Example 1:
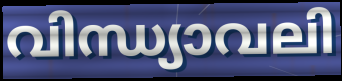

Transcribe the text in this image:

വിന്ധ്യാവലി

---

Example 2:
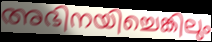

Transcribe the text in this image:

അഭിനയിച്ചെങ്കിലും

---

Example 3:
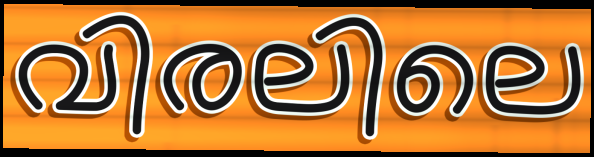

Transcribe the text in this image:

വിരലിലെ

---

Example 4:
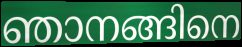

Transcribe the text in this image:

ഞാനങ്ങിനെ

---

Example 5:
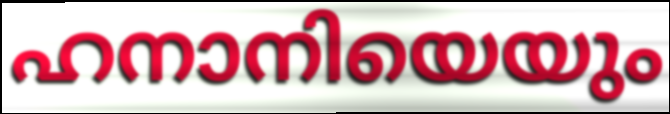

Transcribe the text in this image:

ഹനാനിയെയും